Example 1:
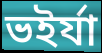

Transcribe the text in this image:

ভইর্যা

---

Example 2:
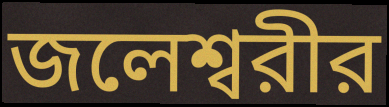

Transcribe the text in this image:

জলেশ্বরীর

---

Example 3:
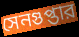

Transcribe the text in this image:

সেনগুপ্তার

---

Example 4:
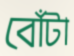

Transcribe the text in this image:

বোঁটা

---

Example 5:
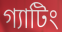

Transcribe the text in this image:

গ্যাটিং